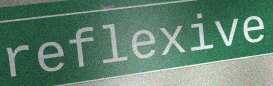
reflexive